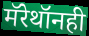
मॅरेथॉनही